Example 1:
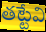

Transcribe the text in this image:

తట్టేవి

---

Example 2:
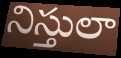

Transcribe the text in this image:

నిస్తులా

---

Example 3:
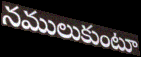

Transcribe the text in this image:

నములుకుంటూ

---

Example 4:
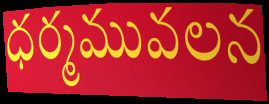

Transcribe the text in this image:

ధర్మమువలన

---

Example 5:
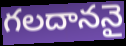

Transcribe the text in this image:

గలదాననై